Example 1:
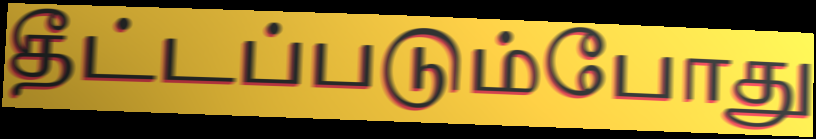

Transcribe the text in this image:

தீட்டப்படும்போது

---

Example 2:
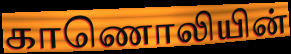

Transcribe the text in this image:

காணொலியின்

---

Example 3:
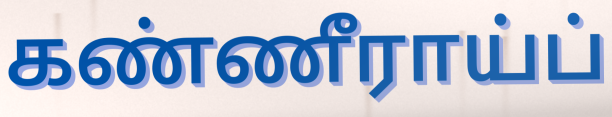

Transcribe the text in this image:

கண்ணீராய்ப்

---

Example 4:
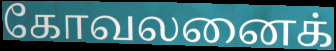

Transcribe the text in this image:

கோவலனைக்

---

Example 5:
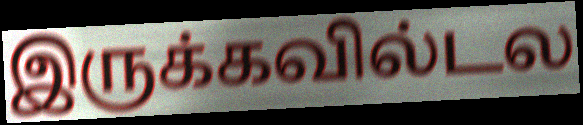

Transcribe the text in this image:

இருக்கவில்டல